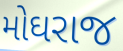
મોઘરાજ